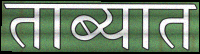
ताब्यात